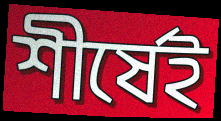
শীর্ষেই